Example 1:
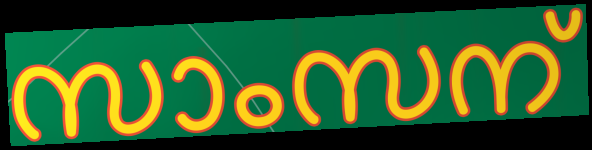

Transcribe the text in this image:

സാംസന്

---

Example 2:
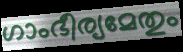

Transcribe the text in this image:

ഗാംഭീര്യമേതും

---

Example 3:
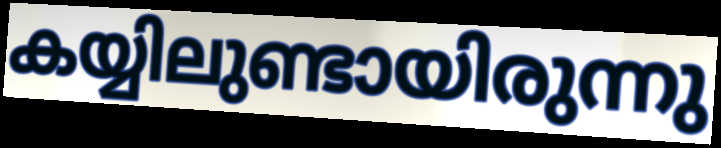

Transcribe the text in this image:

കയ്യിലുണ്ടായിരുന്നു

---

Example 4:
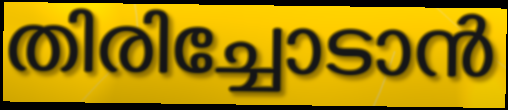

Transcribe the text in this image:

തിരിച്ചോടാൻ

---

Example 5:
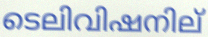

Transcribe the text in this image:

ടെലിവിഷനില്